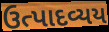
ઉત્પાદવ્યય